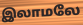
இலாமலே